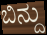
ಬಿನ್ದು